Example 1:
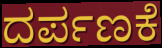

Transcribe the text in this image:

ದರ್ಪಣಕೆ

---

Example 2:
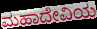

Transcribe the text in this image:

ಮಹಾದೇವಿಯ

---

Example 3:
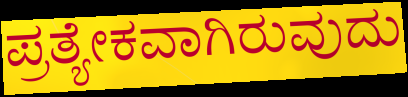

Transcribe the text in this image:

ಪ್ರತ್ಯೇಕವಾಗಿರುವುದು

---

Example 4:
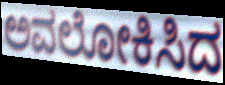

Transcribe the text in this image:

ಅವಲೋಕಿಸಿದ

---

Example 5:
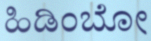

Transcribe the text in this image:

ಹಿಡಿಂಬೋ